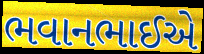
ભવાનભાઈએ